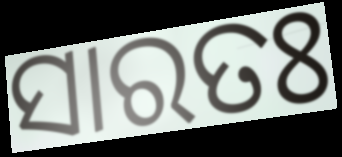
ସାରତଃ